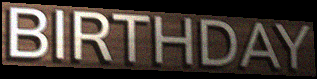
BIRTHDAY